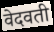
वेदवती